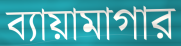
ব্যায়ামাগার